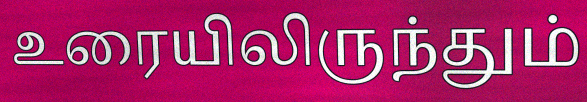
உரையிலிருந்தும்